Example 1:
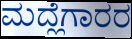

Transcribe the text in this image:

ಮದ್ಲೆಗಾರರ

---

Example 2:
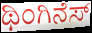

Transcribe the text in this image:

ಥಿಂಗಿನೆಸ್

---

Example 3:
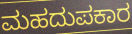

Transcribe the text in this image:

ಮಹದುಪಕಾರ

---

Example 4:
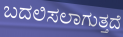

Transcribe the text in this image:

ಬದಲಿಸಲಾಗುತ್ತದೆ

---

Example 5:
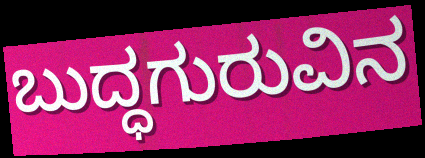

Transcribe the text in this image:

ಬುದ್ಧಗುರುವಿನ